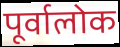
पूर्वालोक